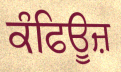
ਕੰਫਿਊਜ਼